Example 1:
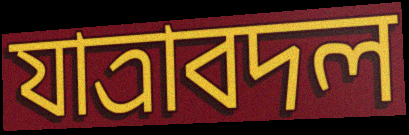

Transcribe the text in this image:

যাত্রাবদল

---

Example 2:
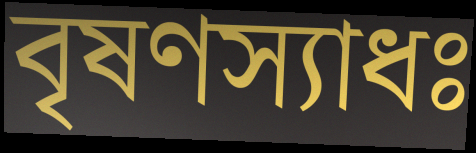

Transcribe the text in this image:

বৃষণস্যাধঃ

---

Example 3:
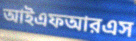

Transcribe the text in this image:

আইএফআরএস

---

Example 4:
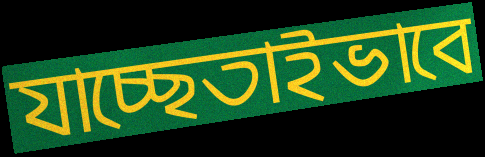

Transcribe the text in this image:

যাচ্ছেতাইভাবে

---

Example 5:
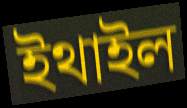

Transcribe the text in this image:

ইথাইল